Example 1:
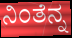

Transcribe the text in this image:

ನಿಂತೆನ್ನ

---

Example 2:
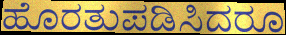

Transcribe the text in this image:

ಹೊರತುಪಡಿಸಿದರೂ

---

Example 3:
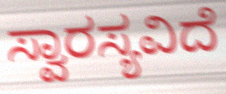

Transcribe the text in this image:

ಸ್ವಾರಸ್ಯವಿದೆ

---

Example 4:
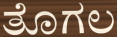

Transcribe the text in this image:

ತೊಗಲ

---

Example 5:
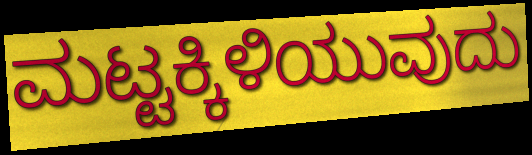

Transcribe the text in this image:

ಮಟ್ಟಕ್ಕಿಳಿಯುವುದು